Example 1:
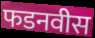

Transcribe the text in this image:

फडनवीस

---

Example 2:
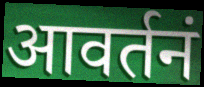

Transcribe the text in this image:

आवर्तनं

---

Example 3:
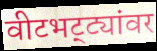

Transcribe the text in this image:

वीटभट्ट्यांवर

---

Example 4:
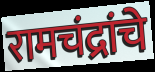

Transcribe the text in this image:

रामचंद्रांचे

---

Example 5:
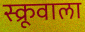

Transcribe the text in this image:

स्क्रूवाला